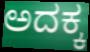
ಅದಕ್ಕ